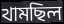
থামছিল